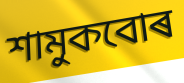
শামুকবোৰ